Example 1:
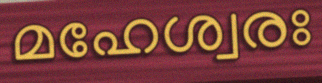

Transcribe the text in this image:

മഹേശ്വരഃ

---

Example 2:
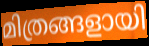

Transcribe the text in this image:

മിത്രങ്ങളായി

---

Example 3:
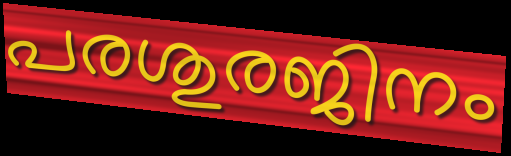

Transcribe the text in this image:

പരശുരജിനം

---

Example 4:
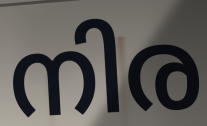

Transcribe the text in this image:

നിര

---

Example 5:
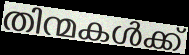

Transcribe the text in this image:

തിന്മകൾക്ക്